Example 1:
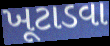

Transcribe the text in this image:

ખૂટાડવા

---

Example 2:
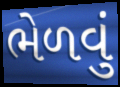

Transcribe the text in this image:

ભેળવું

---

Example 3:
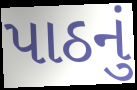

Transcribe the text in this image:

પાઠનું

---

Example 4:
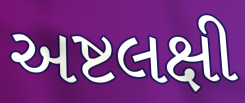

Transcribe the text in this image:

અષ્ટલક્ષી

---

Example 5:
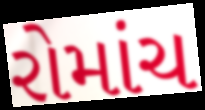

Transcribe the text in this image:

રોમાંચ